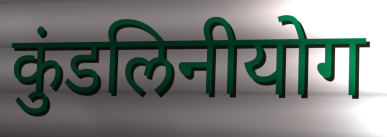
कुंडलिनीयोग